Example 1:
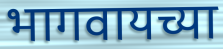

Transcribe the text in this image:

भागवायच्या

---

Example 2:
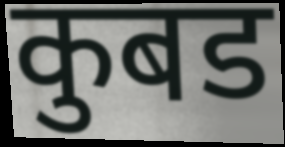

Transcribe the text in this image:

कुबड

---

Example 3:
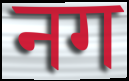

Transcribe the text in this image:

नग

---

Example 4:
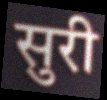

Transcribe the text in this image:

सुरी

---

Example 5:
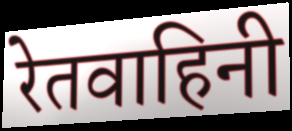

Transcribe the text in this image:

रेतवाहिनी